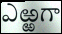
ఎఱ్ఱగా